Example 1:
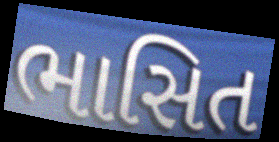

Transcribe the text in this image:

ભાસિત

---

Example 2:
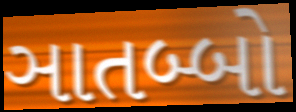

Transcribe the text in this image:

ઞાતબ્બો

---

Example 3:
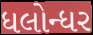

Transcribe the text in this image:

ધલોન્ધર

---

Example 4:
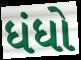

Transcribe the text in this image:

ધંધો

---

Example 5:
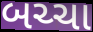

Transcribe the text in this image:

બચ્ચા